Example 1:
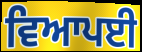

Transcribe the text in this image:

ਵਿਆਪਈ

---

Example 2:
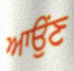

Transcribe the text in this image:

ਆਉਂਣ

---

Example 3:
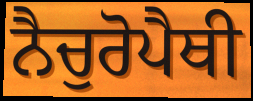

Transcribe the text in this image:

ਨੈਚੁਰੋਪੈਥੀ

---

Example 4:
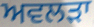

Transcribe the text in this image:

ਅਵਲੜਾ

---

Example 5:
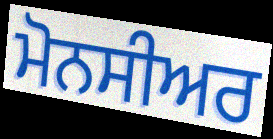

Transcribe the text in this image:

ਮੋਨਸੀਅਰ